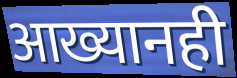
आख्यानही